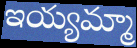
ఇయ్యమ్మా